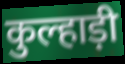
कुल्‍हाड़ी